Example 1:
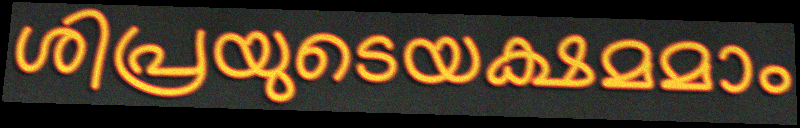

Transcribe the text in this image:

ശിപ്രയുടെയക്ഷമമാം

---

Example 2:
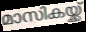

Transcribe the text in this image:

മാസികയ്ക്ക്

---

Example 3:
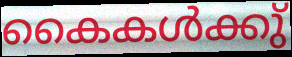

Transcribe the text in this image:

കൈകൾക്കു്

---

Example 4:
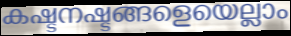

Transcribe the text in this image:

കഷ്ടനഷ്ടങ്ങളെയെല്ലാം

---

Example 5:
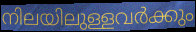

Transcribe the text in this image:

നിലയിലുള്ളവർക്കും